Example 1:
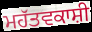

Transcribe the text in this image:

ਮਹੱਤਵਕਾਸ਼ੀ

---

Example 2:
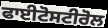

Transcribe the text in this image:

ਫਾਈਟੋਸਟੀਰੋਲ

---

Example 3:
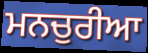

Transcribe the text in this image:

ਮਨਚੁਰੀਆ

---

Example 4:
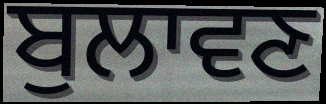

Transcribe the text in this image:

ਬੁਲਾਵਣ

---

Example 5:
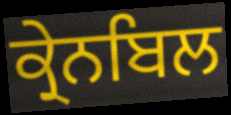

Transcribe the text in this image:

ਕ੍ਰੇਨਬਿਲ